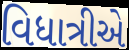
વિધાત્રીએ